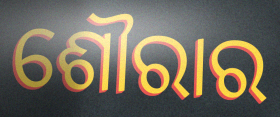
ଶୌରାର